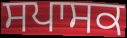
ਸਪਾਸਕ